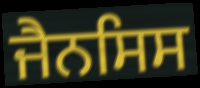
ਜੈਨਸਿਸ